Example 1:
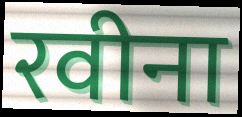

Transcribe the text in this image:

रवीना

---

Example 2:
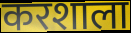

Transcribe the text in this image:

करशाला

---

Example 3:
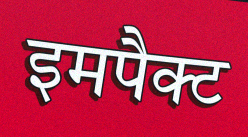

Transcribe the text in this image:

इमपैक्ट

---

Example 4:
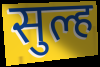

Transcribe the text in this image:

सुल्ह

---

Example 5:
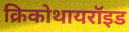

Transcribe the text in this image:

क्रिकोथायरॉइड